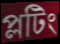
প্লটিং